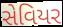
સેવિયર